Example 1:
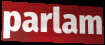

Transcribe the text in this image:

parlam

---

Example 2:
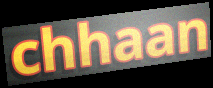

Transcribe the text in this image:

chhaan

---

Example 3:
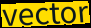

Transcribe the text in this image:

vector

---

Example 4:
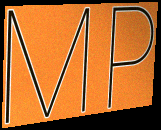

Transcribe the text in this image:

MP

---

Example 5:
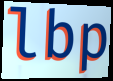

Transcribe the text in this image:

lbp